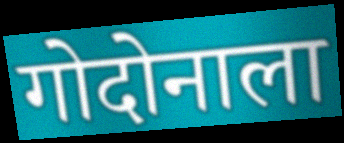
गोदोनाला